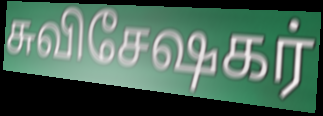
சுவிசேஷகர்